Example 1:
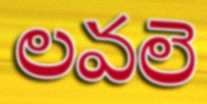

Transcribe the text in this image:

లవలె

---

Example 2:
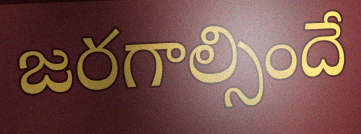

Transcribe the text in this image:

జరగాల్సిందే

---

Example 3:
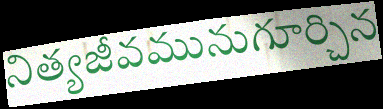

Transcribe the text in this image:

నిత్యజీవమునుగూర్చిన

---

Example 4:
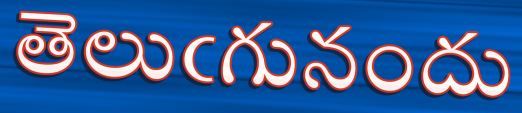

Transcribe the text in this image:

తెలుఁగునందు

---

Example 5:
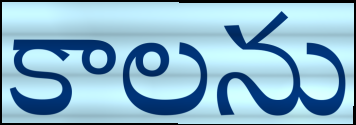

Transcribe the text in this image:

కాలను